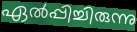
ഏൽപ്പിച്ചിരുന്നു